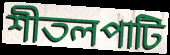
শীতলপাটি